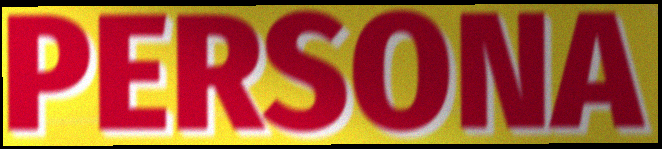
PERSONA